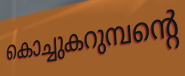
കൊച്ചുകറുമ്പന്റെ